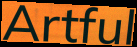
Artful